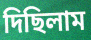
দিছিলাম